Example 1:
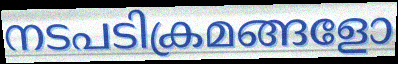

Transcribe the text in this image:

നടപടിക്രമങ്ങളോ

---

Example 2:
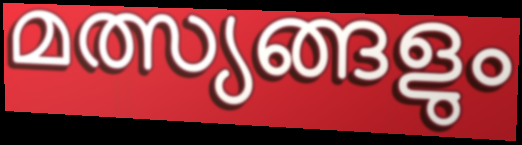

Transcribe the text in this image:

മത്സ്യങ്ങളും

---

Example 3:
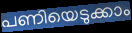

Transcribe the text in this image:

പണിയെടുക്കാം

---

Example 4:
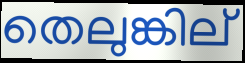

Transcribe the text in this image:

തെലുങ്കില്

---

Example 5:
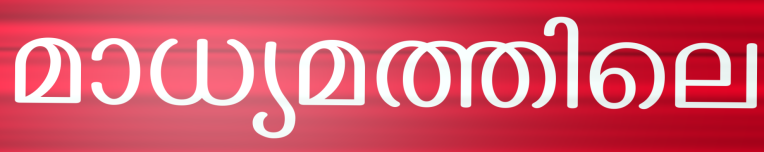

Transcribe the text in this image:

മാധ്യമത്തിലെ